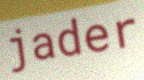
jader